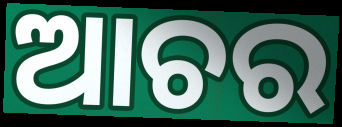
ଆଚର